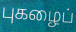
புகழைப்